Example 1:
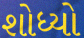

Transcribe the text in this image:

શોધ્યો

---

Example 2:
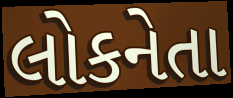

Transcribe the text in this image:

લોકનેતા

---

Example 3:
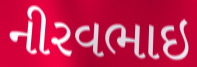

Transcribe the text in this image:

નીરવભાઇ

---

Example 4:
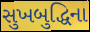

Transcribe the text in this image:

સુખબુદ્ધિના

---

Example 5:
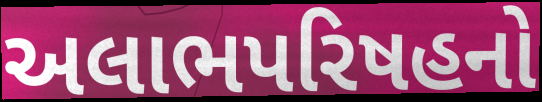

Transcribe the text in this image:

અલાભપરિષહનો